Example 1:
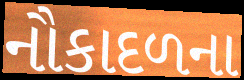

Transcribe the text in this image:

નૌકાદળના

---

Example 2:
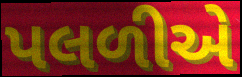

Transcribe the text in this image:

પલળીએ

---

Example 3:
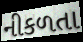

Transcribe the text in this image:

નીકળતા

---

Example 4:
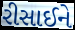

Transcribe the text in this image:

રીસાઈને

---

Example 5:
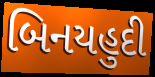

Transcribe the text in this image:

બિનયહુદી